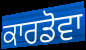
ਕਾਰਡੋਵਾ